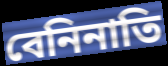
বেনিনাতি